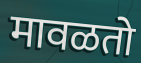
मावळतो